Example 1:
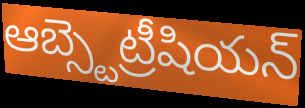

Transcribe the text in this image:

ఆబ్స్టెట్రీషియన్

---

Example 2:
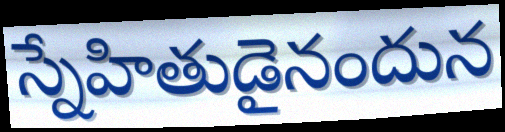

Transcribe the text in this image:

స్నేహితుడైనందున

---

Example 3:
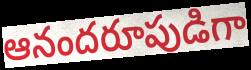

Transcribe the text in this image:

ఆనందరూపుడిగా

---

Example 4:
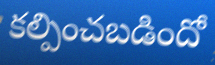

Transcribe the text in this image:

కల్పించబడిందో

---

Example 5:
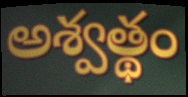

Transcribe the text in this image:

అశ్వత్థం